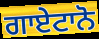
ਗਾਏਟਾਨੋ